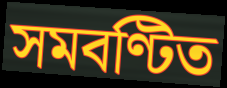
সমবণ্টিত